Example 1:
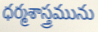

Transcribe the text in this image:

ధర్మశాస్త్రమును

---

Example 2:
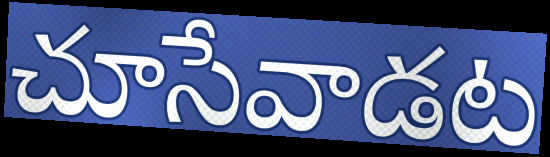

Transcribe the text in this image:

చూసేవాడట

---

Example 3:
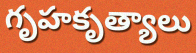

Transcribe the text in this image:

గృహకృత్యాలు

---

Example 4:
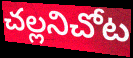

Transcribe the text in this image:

చల్లనిచోట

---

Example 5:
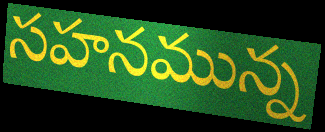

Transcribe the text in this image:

సహనమున్న